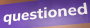
questioned